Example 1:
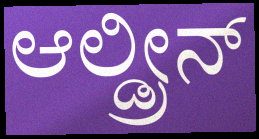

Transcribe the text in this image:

ಆಲ್ಡ್ರೀನ್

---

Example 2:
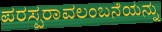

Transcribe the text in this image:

ಪರಸ್ಪರಾವಲಂಬನೆಯನ್ನು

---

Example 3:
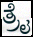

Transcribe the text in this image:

ತ್ರೈ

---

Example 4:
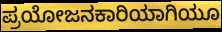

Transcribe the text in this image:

ಪ್ರಯೋಜನಕಾರಿಯಾಗಿಯೂ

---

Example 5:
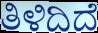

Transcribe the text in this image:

ತಿಳಿದಿದೆ